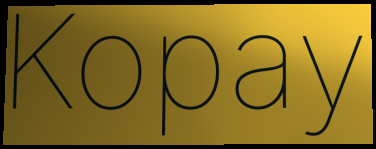
Kopay